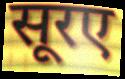
सूरए